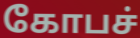
கோபச்